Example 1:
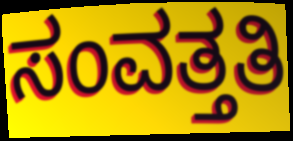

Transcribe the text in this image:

ಸಂವತ್ತತಿ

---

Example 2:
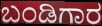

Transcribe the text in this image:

ಬಂಡಿಗಾರ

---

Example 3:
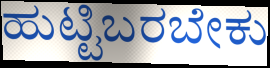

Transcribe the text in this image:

ಹುಟ್ಟಿಬರಬೇಕು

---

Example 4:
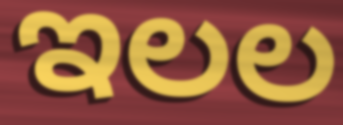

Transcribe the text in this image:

ಇಲಲ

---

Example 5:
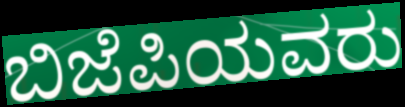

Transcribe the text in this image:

ಬಿಜೆಪಿಯವರು